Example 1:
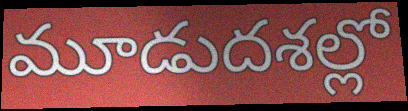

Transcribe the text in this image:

మూడుదశల్లో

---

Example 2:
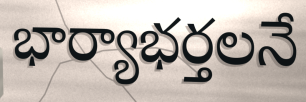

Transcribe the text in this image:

భార్యాభర్తలనే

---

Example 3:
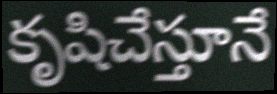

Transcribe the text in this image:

కృషిచేస్తూనే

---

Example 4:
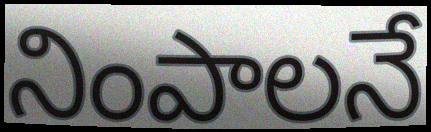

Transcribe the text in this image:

నింపాలనే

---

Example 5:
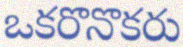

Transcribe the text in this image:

ఒకరొనొకరు